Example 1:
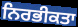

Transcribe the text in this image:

ਨਿਰਭੀਕਤਾ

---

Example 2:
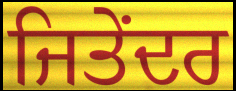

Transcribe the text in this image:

ਜਿਤੇਂਦਰ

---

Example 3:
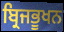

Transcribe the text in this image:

ਬ੍ਰਿਜਭੂਖਨ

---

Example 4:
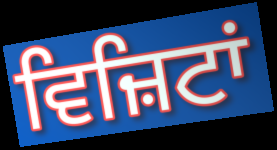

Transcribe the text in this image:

ਵਿਜ਼ਿਟਾਂ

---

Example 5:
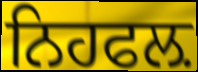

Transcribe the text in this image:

ਨਿਹਫਲ਼